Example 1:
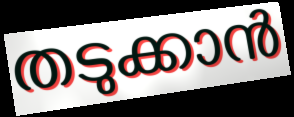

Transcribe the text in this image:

തടുക്കാൻ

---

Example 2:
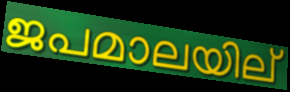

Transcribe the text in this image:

ജപമാലയില്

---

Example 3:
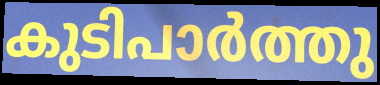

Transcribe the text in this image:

കുടിപാർത്തു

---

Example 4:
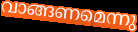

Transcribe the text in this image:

വാങ്ങണമെന്നു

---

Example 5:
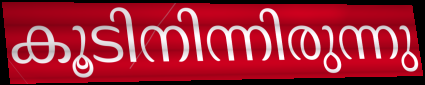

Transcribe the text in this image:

കൂടിനിന്നിരുന്നു